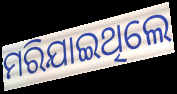
ମରିଯାଇଥିଲେ